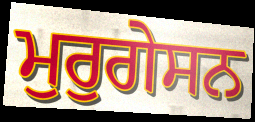
ਮੁਰੁਗੇਸਨ